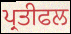
ਪ੍ਰਤੀਫਲ